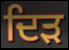
ਦਿੜ